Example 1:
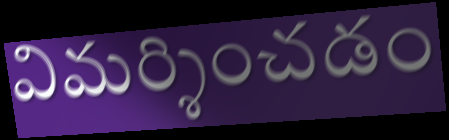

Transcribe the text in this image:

విమర్శించడం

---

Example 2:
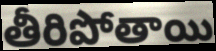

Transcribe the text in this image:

తీరిపోతాయి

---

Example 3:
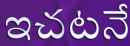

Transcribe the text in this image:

ఇచటనే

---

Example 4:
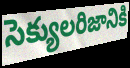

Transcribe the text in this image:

సెక్యులరిజానికి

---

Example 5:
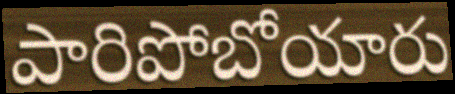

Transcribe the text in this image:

పారిపోబోయారు